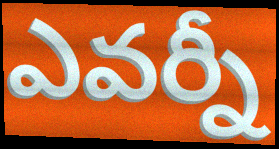
ఎవర్నీ